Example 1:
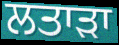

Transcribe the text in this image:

ਲਤਾੜਾ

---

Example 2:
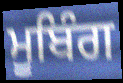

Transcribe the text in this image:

ਮੂਬਿੰਗ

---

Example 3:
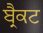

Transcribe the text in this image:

ਬ੍ਰੈਕਟ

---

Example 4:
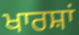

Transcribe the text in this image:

ਖਾਰਸ਼ਾਂ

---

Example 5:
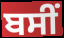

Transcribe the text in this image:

ਬਸੀਂ